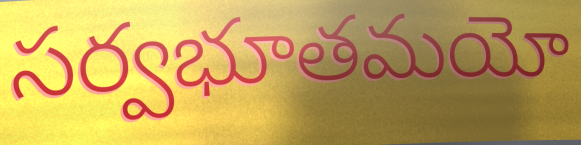
సర్వభూతమయో